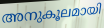
അനുകൂലമായി